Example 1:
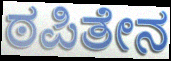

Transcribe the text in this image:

ಠಪಿತೇನ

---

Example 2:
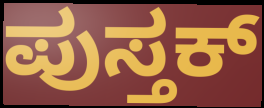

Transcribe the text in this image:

ಪುಸ್ತಕ್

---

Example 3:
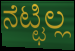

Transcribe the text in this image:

ನೆಟ್ಟಿಲ್ಲ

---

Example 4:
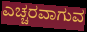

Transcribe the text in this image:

ಎಚ್ಚರವಾಗುವ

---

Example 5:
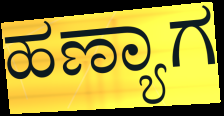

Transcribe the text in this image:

ಹಣ್ಯಾಗ